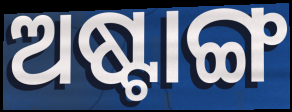
ଅଷ୍ଟାଙ୍ଗ